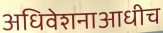
अधिवेशनाआधीच